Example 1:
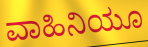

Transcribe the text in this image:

ವಾಹಿನಿಯೂ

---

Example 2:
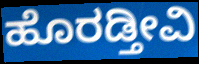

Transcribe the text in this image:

ಹೊರಡ್ತೀವಿ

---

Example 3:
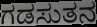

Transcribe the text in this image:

ಗಡಸುತನ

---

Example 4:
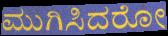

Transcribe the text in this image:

ಮುಗಿಸಿದರೋ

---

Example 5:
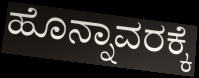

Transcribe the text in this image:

ಹೊನ್ನಾವರಕ್ಕೆ